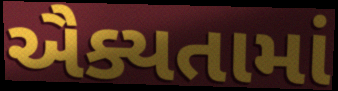
ઐક્યતામાં